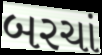
બરચાં